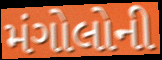
મંગોલોની